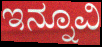
ಇನ್ನೂವಿ